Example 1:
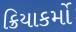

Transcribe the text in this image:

ક્રિયાકર્મો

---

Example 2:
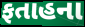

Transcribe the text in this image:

ફતાહના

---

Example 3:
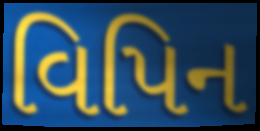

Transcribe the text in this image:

વિપિન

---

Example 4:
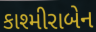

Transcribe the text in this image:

કાશ્મીરાબેન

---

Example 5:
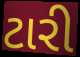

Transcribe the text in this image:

ટારી